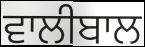
ਵਾਲੀਬਾਲ